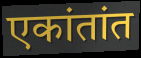
एकांतांत